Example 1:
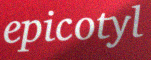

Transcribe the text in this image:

epicotyl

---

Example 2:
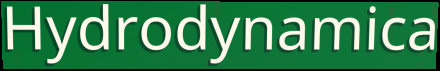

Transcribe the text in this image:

Hydrodynamica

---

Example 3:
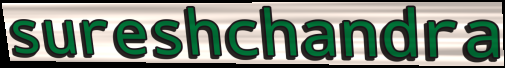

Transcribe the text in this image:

sureshchandra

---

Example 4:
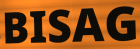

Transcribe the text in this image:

BISAG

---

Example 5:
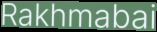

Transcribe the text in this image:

Rakhmabai